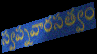
స్వప్నవారసత్వం